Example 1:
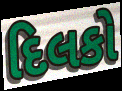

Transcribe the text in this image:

દિલકો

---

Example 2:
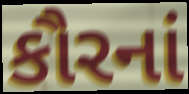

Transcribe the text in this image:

કૌરનાં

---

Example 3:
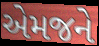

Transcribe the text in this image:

એમજને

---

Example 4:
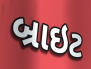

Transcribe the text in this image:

બ્રાઇટ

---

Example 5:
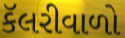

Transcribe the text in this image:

કૅલરીવાળો